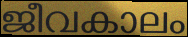
ജീവകാലം